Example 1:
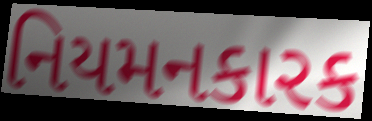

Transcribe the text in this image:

નિયમનકારક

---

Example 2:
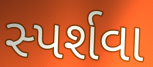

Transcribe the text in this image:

સ્પર્શવા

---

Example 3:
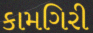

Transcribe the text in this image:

કામગિરી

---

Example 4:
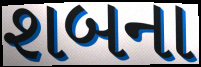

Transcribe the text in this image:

શબના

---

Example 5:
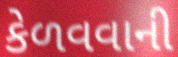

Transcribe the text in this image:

કેળવવાની